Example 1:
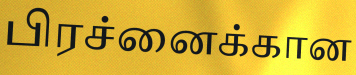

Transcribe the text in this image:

பிரச்னைக்கான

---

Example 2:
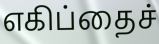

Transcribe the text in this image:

எகிப்தைச்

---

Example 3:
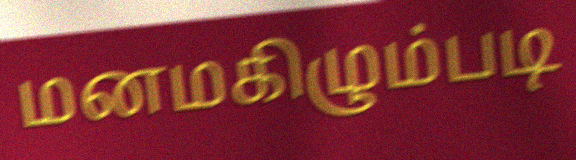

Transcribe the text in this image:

மனமகிழும்படி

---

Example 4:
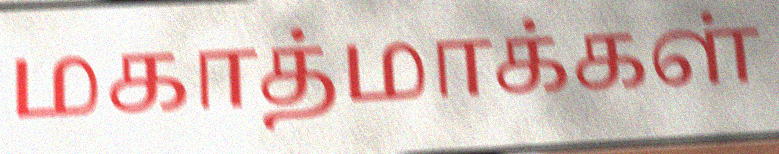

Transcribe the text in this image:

மகாத்மாக்கள்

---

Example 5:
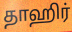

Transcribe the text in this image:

தாஹிர்